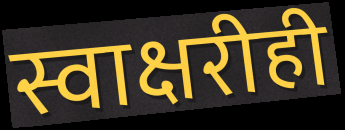
स्वाक्षरीही